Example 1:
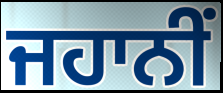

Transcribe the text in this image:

ਜਹਾਨੀਂ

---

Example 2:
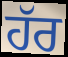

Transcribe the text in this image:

ਹੱਰ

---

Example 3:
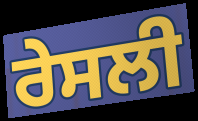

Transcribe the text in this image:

ਰੇਸਲੀ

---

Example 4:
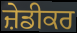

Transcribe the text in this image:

ਜ਼ੇਡੀਕਰ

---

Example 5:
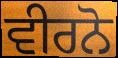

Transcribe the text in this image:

ਵੀਰਨੋ